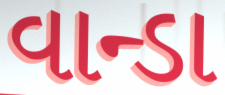
વાન્ડા